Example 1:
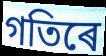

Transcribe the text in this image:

গতিৰে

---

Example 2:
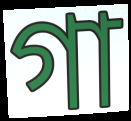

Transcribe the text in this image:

গা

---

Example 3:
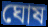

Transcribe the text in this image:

ঘোষ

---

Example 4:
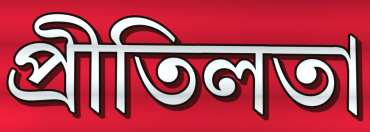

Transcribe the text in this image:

প্ৰীতিলতা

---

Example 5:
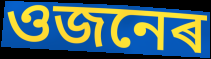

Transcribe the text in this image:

ওজনেৰ